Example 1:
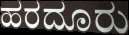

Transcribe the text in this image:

ಹರದೂರು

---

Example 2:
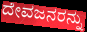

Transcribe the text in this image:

ದೇವಜನರನ್ನು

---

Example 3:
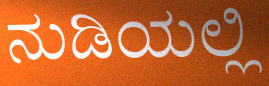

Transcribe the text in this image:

ನುಡಿಯಲ್ಲಿ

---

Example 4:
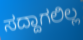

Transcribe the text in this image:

ಸದ್ದಾಗಲಿಲ್ಲ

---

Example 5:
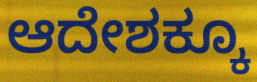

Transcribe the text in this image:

ಆದೇಶಕ್ಕೂ